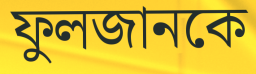
ফুলজানকে